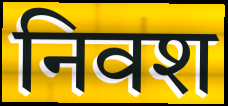
निवश